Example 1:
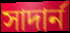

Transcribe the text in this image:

সাদার্ন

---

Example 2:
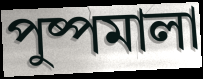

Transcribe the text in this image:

পুষ্পমালা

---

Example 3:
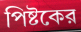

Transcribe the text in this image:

পিষ্টকের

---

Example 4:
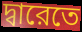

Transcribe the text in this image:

দ্বারেতে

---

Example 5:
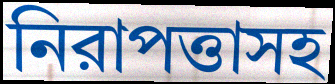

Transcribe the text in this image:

নিরাপত্তাসহ